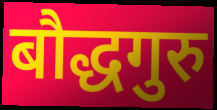
बौद्धगुरु